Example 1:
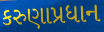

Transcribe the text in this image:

કરુણાપ્રધાન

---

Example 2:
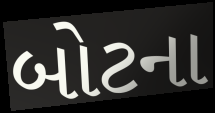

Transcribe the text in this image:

બોટના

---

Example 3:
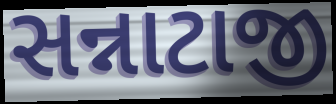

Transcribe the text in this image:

સન્નાટાજી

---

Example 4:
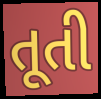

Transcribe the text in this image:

તૂતી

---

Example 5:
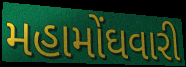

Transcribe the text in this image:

મહામોંઘવારી